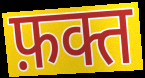
फ़क्त